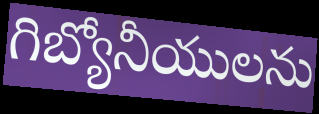
గిబ్యోనీయులను